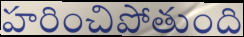
హరించిపోతుంది